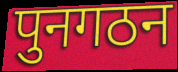
पुनगठन